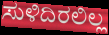
ಸುಳಿದಿರಲಿಲ್ಲ